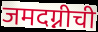
जमदग्नीची